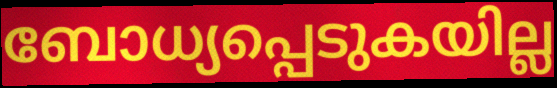
ബോധ്യപ്പെടുകയില്ല